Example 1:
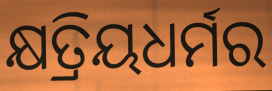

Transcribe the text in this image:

କ୍ଷତ୍ରିୟଧର୍ମର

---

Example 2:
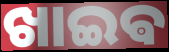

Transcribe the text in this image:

ଖାଇଵ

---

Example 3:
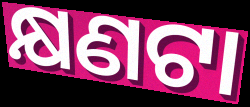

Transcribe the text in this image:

କ୍ଷଣଟା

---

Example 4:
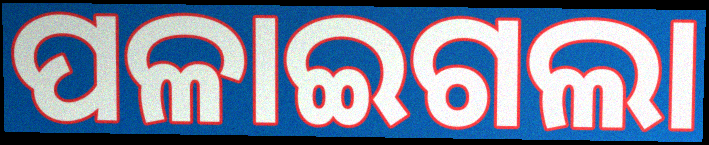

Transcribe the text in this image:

ପଳାଇଗଲା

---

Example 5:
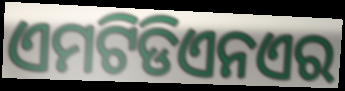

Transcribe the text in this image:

ଏମଟିଡିଏନଏର